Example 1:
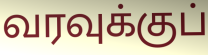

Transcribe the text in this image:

வரவுக்குப்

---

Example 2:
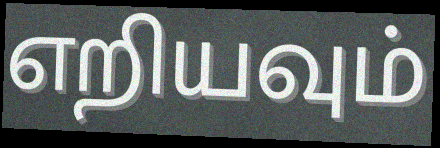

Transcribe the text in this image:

எறியவும்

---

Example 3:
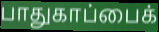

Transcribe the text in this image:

பாதுகாப்பைக்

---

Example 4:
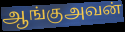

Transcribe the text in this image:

ஆங்குஅவன்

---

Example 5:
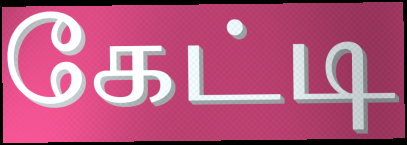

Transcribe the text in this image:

கேட்டி